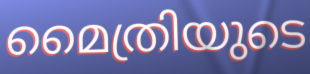
മൈത്രിയുടെ